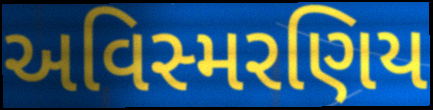
અવિસ્મરણિય